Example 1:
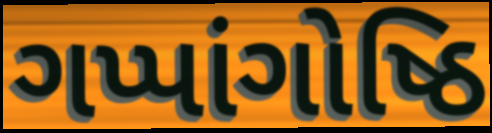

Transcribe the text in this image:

ગપ્પાંગોષ્ઠિ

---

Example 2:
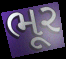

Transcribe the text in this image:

ભૂર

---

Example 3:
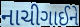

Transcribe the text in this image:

નાચીગાઈને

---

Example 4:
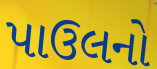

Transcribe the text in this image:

પાઉલનો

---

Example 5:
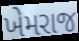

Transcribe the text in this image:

ખેમરાજ